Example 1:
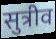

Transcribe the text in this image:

सुत्रीव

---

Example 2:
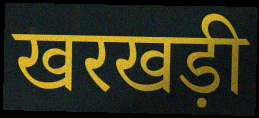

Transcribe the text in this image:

खरखड़ी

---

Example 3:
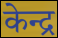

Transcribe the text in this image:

केन्द्र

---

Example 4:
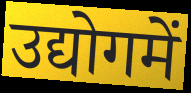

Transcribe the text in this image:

उद्योगमें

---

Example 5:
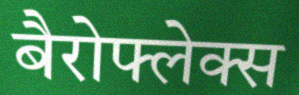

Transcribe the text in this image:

बैरोफ्लेक्स